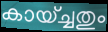
കായ്ച്ചതും